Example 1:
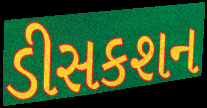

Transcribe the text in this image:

ડીસકશન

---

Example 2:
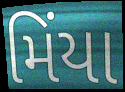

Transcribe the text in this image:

મિંયા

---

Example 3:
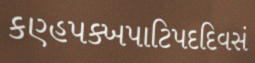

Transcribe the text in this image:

કણ્હપક્ખપાટિપદદિવસં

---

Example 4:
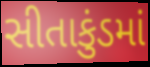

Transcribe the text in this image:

સીતાકુંડમાં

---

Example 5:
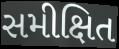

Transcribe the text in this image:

સમીક્ષિત